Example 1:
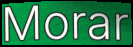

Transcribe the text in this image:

Morar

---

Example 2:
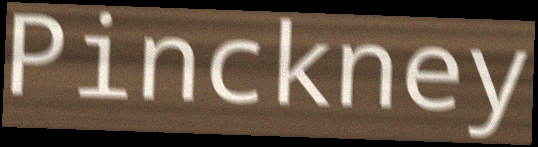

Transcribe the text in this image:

Pinckney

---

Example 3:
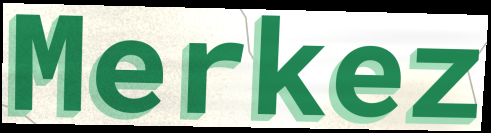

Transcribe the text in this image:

Merkez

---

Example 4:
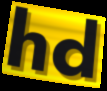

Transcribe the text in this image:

hd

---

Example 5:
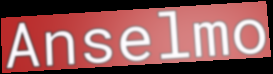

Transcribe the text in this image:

Anselmo